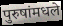
पुरुषांमधले